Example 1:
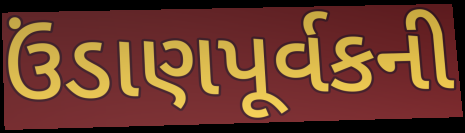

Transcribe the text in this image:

ઉંડાણપૂર્વકની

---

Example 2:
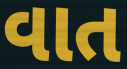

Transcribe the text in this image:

વાત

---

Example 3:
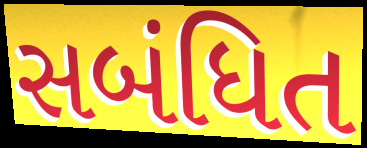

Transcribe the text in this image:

સબંધિત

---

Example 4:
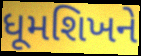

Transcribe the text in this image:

ધૂમશિખને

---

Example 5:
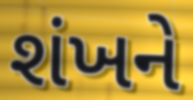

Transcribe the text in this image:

શંખને